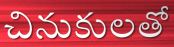
చినుకులతో